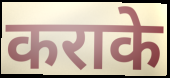
कराके